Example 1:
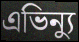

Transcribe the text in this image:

এভিন্যু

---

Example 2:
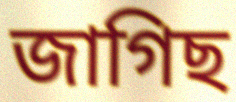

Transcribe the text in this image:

জাগিছ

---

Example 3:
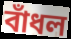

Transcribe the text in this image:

বাঁধল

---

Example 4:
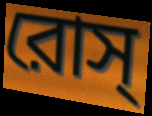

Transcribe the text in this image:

রোস্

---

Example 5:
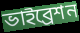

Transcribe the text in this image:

ভাইব্রেশন